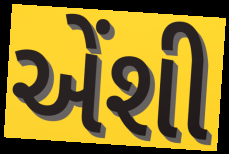
એંશી